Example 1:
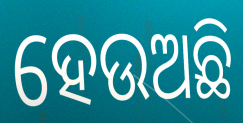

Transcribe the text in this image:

ହେଉଅଛି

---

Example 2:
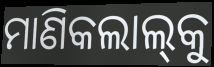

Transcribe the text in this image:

ମାଣିକଲାଲ୍‍କୁ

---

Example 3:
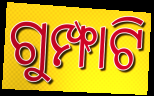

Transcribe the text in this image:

ଗୁମ୍ଫାଟି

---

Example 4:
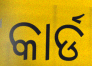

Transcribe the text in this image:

କାର୍ଡ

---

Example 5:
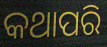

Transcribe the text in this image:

କଥାପରି